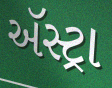
ઍસ્ટ્રા